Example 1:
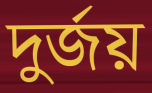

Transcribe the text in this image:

দুর্জয়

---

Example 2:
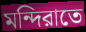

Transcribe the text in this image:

মন্দিরাতে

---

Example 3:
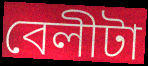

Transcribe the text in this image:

বেলীটা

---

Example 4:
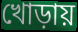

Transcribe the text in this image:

খোড়ায়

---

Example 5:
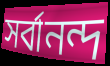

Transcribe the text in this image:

সর্বানন্দ